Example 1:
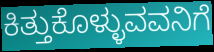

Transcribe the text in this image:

ಕಿತ್ತುಕೊಳ್ಳುವವನಿಗೆ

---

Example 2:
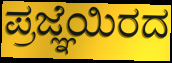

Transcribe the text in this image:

ಪ್ರಜ್ಞೆಯಿರದ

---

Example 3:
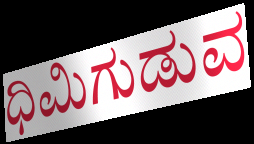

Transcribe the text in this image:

ಧಿಮಿಗುಡುವ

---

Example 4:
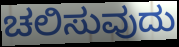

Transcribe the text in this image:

ಚಲಿಸುವುದು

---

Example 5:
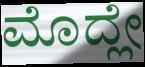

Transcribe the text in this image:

ಮೊದ್ಲೇ